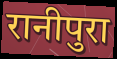
रानीपुरा